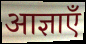
आज्ञाएँ